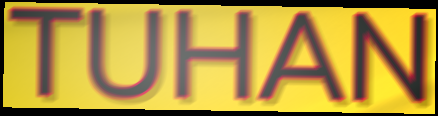
TUHAN